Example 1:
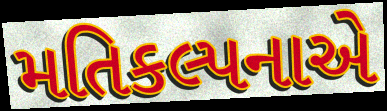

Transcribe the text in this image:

મતિકલ્પનાએ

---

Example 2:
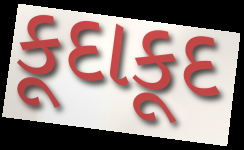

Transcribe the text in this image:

કૂદાકૂદ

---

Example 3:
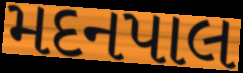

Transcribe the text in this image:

મદનપાલ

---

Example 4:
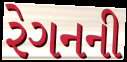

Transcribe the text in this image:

રેગનની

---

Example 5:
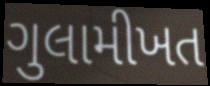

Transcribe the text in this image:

ગુલામીખત